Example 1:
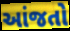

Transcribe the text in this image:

આંજતો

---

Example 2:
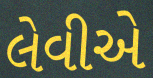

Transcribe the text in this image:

લેવીએ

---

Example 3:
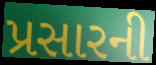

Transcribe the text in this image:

પ્રસારની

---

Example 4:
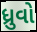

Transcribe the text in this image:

ધ્રુવો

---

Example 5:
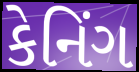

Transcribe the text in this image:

કેનિંગ